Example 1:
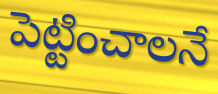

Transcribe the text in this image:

పెట్టించాలనే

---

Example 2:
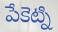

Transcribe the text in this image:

పేకెట్ని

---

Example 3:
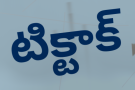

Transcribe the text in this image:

టిక్టాక్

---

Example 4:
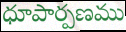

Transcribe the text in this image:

ధూపార్పణము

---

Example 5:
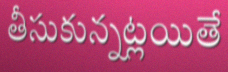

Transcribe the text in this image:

తీసుకున్నట్లయితే